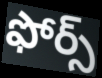
ఫోర్స్